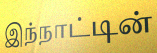
இந்நாட்டின்